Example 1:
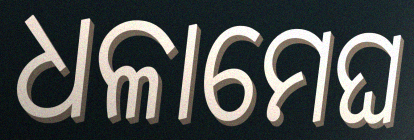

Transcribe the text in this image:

ଧଳାମେଘ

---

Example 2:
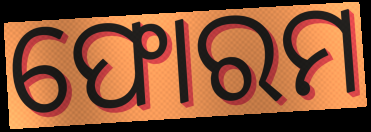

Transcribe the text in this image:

ଫୋରମ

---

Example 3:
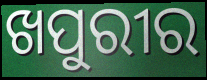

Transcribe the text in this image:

ଖପୁରୀର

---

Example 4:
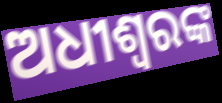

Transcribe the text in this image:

ଅଧୀଶ୍ୱରଙ୍କ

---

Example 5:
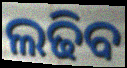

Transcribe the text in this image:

ଲଢିବ